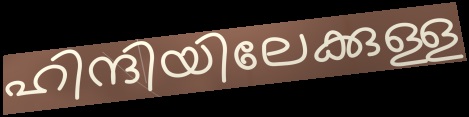
ഹിന്ദിയിലേക്കുള്ള